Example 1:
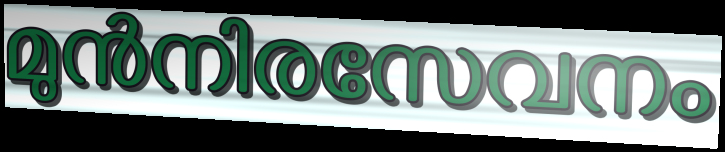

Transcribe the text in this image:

മുൻനിരസേവനം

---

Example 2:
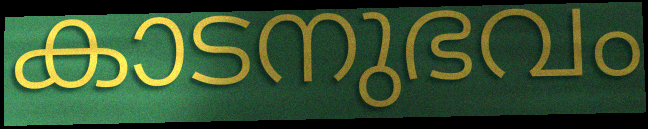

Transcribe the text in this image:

കാടനുഭവം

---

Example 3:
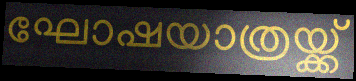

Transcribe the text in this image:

ഘോഷയാത്രയ്ക്ക്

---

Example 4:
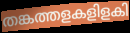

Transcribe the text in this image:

തങ്കത്തളകളിളകി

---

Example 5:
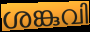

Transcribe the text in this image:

ശങ്കുവി